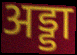
अड्डा